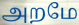
அறமே